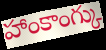
హాంకాంగ్కు